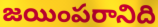
జయింపరానిది